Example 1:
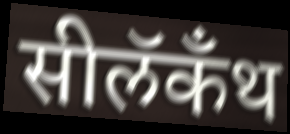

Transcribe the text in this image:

सीलॅकँथ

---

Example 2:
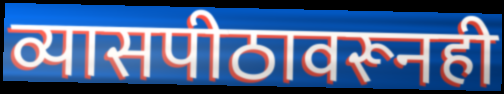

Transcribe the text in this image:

व्यासपीठावरूनही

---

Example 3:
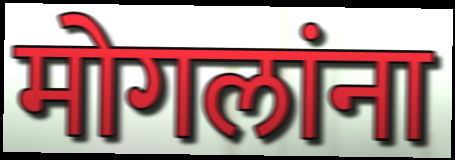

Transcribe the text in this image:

मोगलांना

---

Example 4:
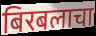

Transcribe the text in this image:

बिरबलाचा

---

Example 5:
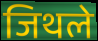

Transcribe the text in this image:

जिथले